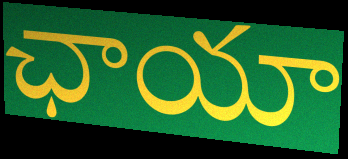
ఛాయా